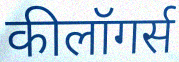
कीलॉगर्स